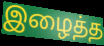
இழைத்த